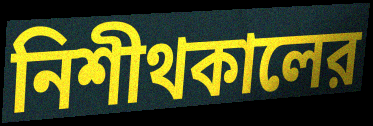
নিশীথকালের